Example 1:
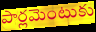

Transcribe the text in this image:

పార్లమెంటుకు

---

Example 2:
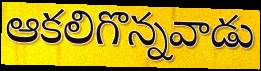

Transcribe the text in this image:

ఆకలిగొన్నవాడు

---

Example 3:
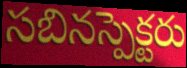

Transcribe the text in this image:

సబినస్పెక్టరు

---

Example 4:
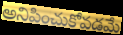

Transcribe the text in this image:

అనిపించుకోవడమే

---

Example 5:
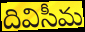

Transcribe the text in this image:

దివిసీమ